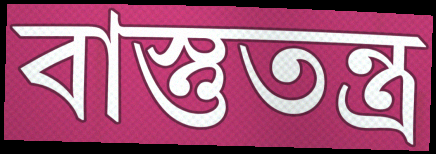
বাস্তুতন্ত্র